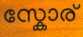
സ്കോര്